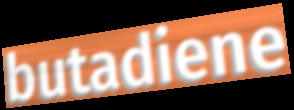
butadiene